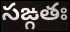
సఙ్గతః